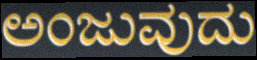
ಅಂಜುವುದು